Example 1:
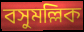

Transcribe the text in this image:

বসুমল্লিক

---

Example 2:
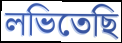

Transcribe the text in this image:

লভিতেছি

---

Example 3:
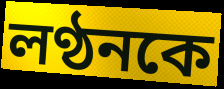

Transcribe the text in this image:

লণ্ঠনকে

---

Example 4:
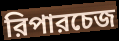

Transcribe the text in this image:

রিপারচেজ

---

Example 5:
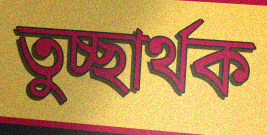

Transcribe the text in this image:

তুচ্ছার্থক